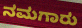
ನಮಗಾರು